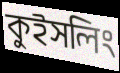
কুইসলিং